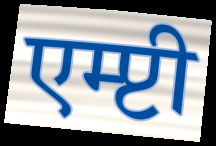
एम्प्टी